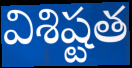
విశిష్టత